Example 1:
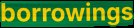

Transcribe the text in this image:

borrowings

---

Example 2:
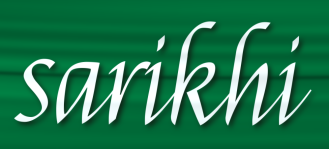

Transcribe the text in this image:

sarikhi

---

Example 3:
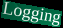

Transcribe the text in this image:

Logging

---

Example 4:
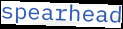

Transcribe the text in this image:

spearhead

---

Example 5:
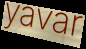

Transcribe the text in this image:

yavar